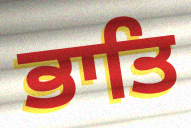
ਭਾਤਿ